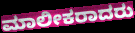
ಮಾಲೀಕರಾದರು